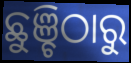
ଛୁଞ୍ଚିଠାରୁ